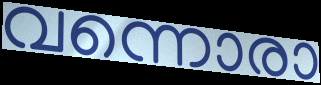
വന്നൊരാ